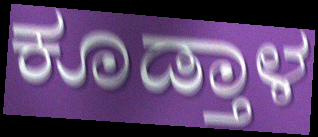
ಕೂಡ್ತಾಳ